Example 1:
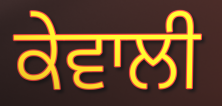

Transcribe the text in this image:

ਕੇਵਾਲੀ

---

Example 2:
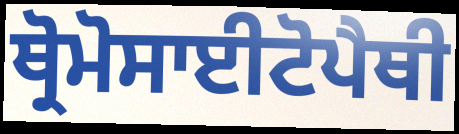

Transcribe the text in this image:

ਥ੍ਰੋਮੋਸਾਈਟੋਪੈਥੀ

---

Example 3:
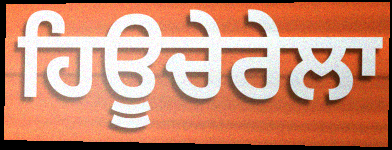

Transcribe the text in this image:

ਹਿਊਚੇਰੇਲਾ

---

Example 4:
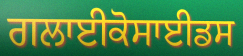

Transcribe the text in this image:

ਗਲਾਈਕੋਸਾਈਡਸ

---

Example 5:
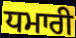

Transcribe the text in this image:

ਧਮਾਰੀ